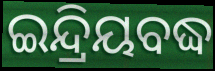
ଇନ୍ଦ୍ରିୟବଦ୍ଧ